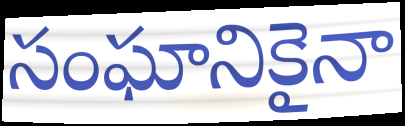
సంఘానికైనా